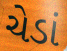
ચેડાં